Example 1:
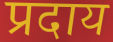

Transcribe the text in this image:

प्रदाय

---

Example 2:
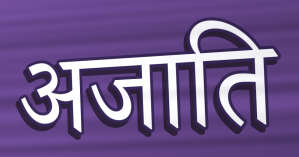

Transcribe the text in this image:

अजाति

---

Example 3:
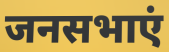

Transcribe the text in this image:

जनसभाएं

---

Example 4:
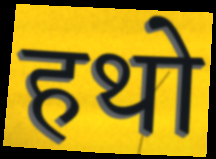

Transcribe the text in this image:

हथो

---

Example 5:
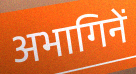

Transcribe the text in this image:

अभागिनें